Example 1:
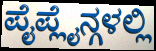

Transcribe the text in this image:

ಪೈಪ್ಲೈನ್ಗಳಲ್ಲಿ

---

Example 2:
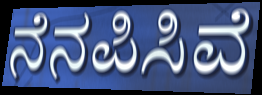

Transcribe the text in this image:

ನೆನಪಿಸಿವೆ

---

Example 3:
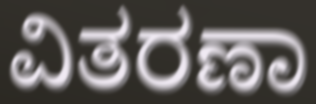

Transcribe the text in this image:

ವಿತರಣಾ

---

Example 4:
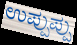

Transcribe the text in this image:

ಉಪ್ಪುಪ್ಪು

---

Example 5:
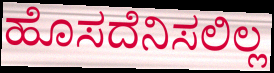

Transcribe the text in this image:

ಹೊಸದೆನಿಸಲಿಲ್ಲ